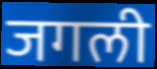
जगली